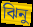
ঝিনু